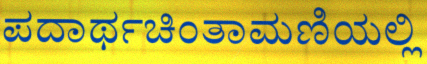
ಪದಾರ್ಥಚಿಂತಾಮಣಿಯಲ್ಲಿ